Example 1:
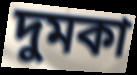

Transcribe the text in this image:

দুমকা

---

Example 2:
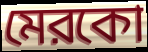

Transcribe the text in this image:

মেরকো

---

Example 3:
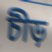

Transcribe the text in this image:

চীড়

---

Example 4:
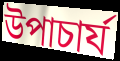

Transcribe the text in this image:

উপাচার্য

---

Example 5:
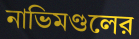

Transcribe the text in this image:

নাভিমণ্ডলের